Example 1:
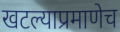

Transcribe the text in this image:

खटल्याप्रमाणेच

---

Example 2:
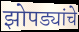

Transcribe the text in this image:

झोपड्यांचे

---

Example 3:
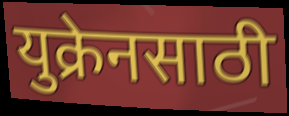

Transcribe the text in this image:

युक्रेनसाठी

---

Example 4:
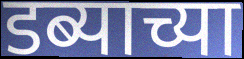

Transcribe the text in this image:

डब्याच्या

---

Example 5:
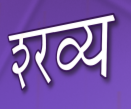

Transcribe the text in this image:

श्रव्य